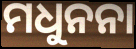
ମଧୁନନା